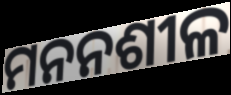
ମନନଶୀଳ